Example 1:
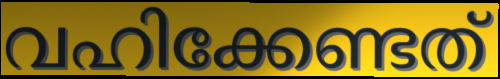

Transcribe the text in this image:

വഹിക്കേണ്ടത്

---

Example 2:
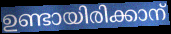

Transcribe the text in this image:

ഉണ്ടായിരിക്കാന്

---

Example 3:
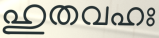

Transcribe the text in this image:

ഹുതവഹഃ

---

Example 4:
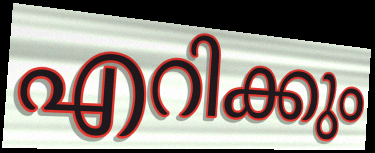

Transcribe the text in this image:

എറിക്കും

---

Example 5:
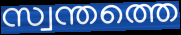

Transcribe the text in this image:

സ്വന്തത്തെ